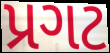
પ્રગટ